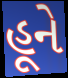
હૂને